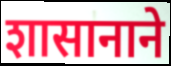
शासानाने